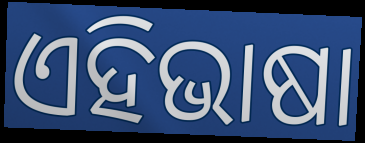
ଏହିଭାଷା